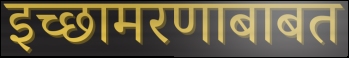
इच्छामरणाबाबत